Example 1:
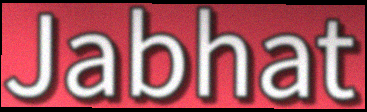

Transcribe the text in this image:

Jabhat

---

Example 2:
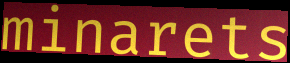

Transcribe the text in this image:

minarets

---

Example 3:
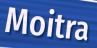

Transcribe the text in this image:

Moitra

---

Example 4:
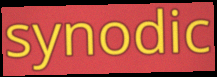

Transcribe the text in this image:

synodic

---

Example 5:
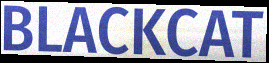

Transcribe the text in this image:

BLACKCAT